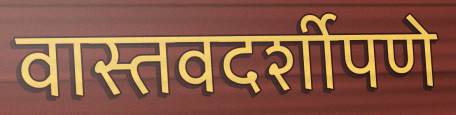
वास्तवदर्शीपणे